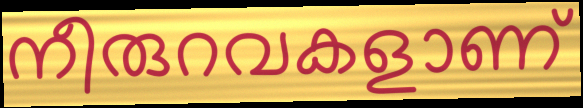
നീരുറവകളാണ്